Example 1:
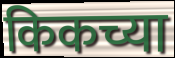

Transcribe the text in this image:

किकच्या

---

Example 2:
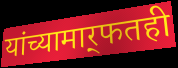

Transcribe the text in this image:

यांच्यामार्फतही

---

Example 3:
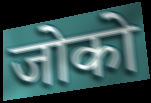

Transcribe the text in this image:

जोको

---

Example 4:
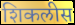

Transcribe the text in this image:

शिकलीस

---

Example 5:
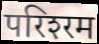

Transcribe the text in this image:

परिश्रम